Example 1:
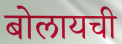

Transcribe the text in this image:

बोलायची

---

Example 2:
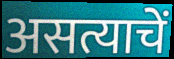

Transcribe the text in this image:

असत्याचें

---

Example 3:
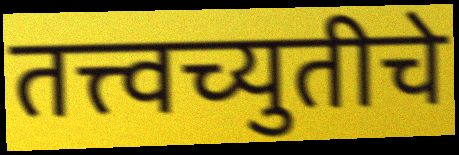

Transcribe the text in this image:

तत्त्वच्युतीचे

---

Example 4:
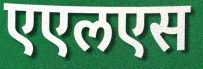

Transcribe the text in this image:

एएलएस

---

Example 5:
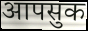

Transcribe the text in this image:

आपसुक